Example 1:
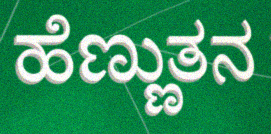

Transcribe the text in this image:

ಹೆಣ್ಣುತನ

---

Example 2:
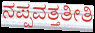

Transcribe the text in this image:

ನಪ್ಪವತ್ತತೀತಿ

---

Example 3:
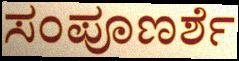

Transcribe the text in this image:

ಸಂಪೂಣರ್ಶೆ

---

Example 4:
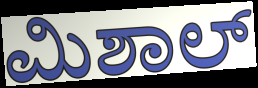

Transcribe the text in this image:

ಮಿಶಾಲ್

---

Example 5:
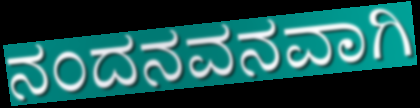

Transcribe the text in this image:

ನಂದನವನವಾಗಿ